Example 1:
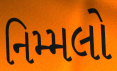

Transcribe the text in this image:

નિમ્મલો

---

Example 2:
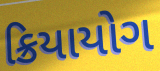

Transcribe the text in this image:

ક્રિયાયોગ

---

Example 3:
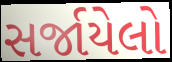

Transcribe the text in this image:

સર્જાયેલો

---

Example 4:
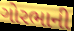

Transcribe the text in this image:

ગોરભાની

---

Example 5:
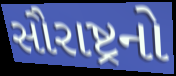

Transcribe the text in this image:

સૌરાષ્ટ્રનો